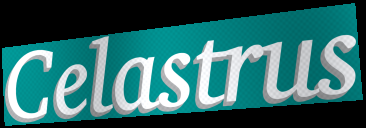
Celastrus